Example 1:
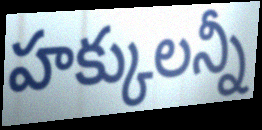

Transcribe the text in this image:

హక్కులన్నీ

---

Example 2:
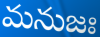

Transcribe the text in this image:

మనుజః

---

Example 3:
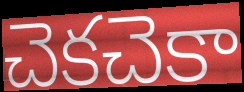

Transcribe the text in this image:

చెకచెకా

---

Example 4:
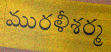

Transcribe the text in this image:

మురళీశర్మ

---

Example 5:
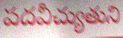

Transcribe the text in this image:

పదవీచ్యుతుని